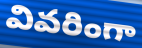
వివరింగా